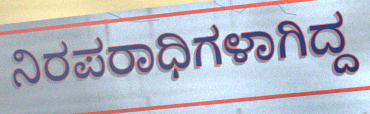
ನಿರಪರಾಧಿಗಳಾಗಿದ್ದ